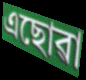
এছোৱা